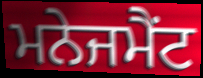
ਮਨੇਜਮੈਂਟ